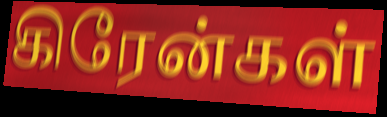
கிரேன்கள்